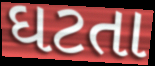
ઘટતા